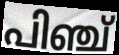
പിഞ്ച്